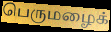
பெருமழைக்